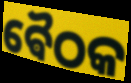
ଵୈଠକ